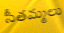
సీతమ్మలు